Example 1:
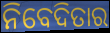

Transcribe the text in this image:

ନିବେଦିତାର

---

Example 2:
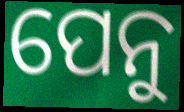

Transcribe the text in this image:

ପେନୁ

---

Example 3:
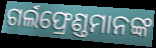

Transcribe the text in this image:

ଗର୍ଲଫ୍ରେଣ୍ଡମାନଙ୍କ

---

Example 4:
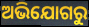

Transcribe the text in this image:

ଅଭିଯୋଗରୁ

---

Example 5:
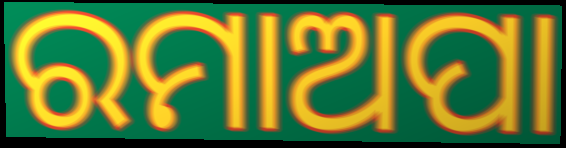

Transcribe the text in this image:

ରମାଅପା